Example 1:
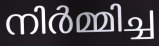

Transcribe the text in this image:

നിർമ്മിച്ച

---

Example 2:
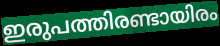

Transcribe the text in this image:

ഇരുപത്തിരണ്ടായിരം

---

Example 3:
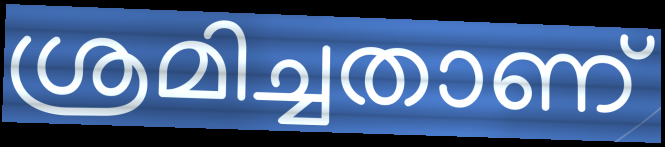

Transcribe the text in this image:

ശ്രമിച്ചതാണ്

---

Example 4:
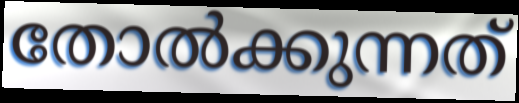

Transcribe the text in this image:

തോൽക്കുന്നത്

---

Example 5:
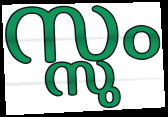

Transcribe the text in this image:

സ്സും